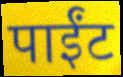
पाईंट